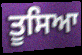
ਤੂਸਿਆ